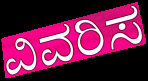
ವಿವರಿಸ